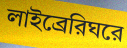
লাইব্রেরিঘরে